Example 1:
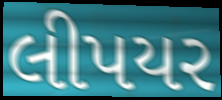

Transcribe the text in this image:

લીપયર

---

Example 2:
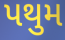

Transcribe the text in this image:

પથુમ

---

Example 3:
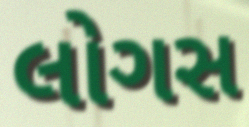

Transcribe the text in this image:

લોગસ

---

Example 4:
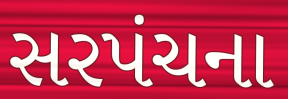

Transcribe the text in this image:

સરપંચના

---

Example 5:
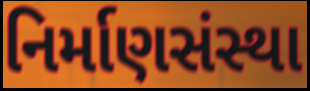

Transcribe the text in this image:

નિર્માણસંસ્થા